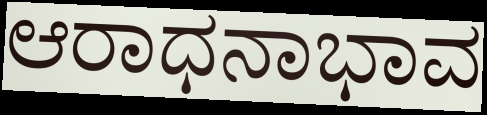
ಆರಾಧನಾಭಾವ